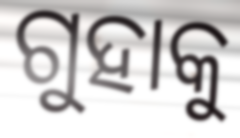
ଗୁହାକୁ